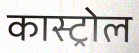
कास्ट्रोल